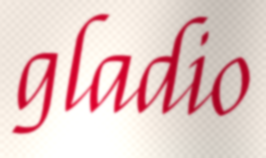
gladio